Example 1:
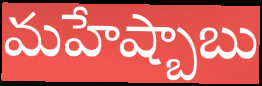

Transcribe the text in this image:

మహేష్బాబు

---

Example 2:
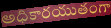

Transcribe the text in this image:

అధికారయుతంగా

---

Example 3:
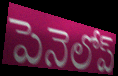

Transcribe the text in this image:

పెనెలోప్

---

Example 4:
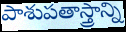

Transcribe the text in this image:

పాశుపతాస్త్రాన్ని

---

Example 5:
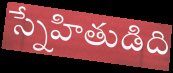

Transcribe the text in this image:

స్నేహితుడిది